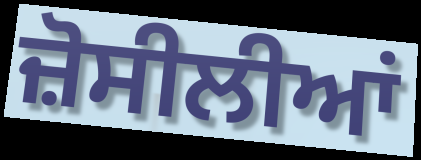
ਜ਼ੋਸੀਲੀਆਂ